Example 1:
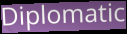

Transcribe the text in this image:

Diplomatic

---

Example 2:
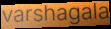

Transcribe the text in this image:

varshagala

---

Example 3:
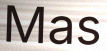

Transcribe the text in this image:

Mas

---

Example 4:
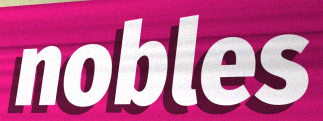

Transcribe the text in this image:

nobles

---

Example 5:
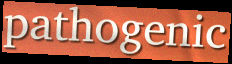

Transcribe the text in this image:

pathogenic